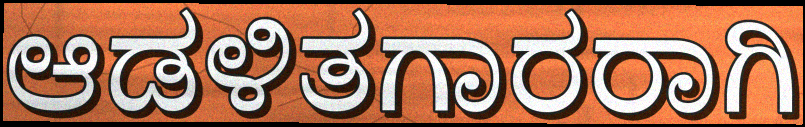
ಆಡಳಿತಗಾರರಾಗಿ